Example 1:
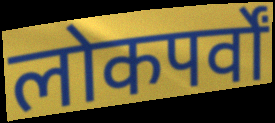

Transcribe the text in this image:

लोकपर्वों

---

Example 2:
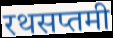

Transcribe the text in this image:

रथसप्तमी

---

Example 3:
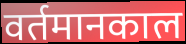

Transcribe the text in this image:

वर्तमानकाल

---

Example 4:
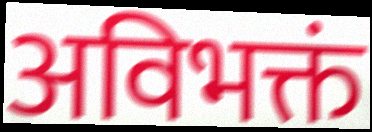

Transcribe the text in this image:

अविभक्तं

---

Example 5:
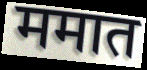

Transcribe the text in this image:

ममात